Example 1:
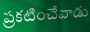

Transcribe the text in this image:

ప్రకటించేవాడు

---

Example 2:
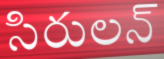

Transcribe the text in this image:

సిరులన్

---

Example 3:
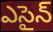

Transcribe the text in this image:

ఎసైన్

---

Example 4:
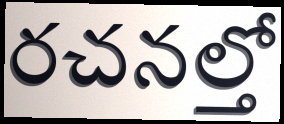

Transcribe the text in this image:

రచనల్తో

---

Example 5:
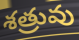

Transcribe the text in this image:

శత్రువు